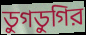
ডুগডুগির